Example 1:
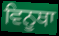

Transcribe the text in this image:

ਵਿਨੂਥਾ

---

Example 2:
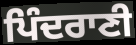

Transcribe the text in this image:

ਪਿੰਦਰਾਣੀ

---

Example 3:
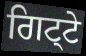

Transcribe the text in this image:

ਗਿਟ੍ਟੇ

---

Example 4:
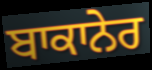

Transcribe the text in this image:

ਬਾਕਾਨੇਰ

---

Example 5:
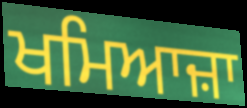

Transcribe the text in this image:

ਖਮਿਆਜ਼ਾ